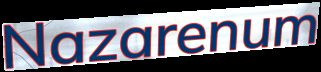
Nazarenum